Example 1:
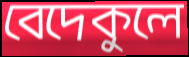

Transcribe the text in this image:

বেদেকুলে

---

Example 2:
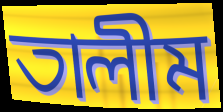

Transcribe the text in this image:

তালীম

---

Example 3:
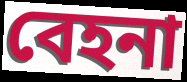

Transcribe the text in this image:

বেহনা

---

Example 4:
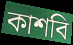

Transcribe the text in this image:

কাশবি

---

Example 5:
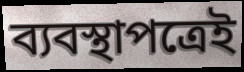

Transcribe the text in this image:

ব্যবস্থাপত্রেই